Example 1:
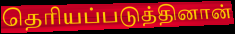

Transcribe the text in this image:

தெரியப்படுத்தினான்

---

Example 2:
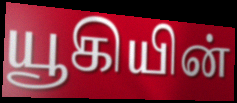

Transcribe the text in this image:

யூகியின்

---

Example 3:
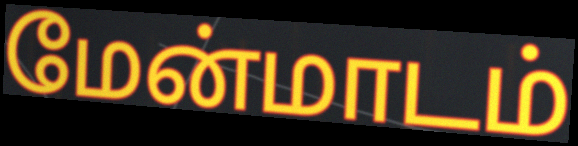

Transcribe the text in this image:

மேன்மாடம்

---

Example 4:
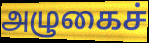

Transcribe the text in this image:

அழுகைச்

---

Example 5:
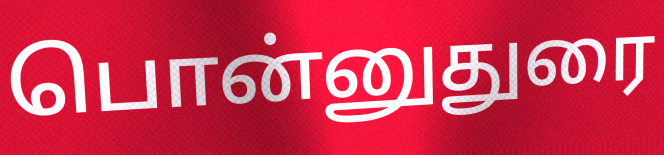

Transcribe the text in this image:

பொன்னுதுரை